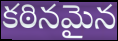
కఠినమైన